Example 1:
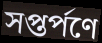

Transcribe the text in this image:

সপ্তর্পণে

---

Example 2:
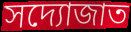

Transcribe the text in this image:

সদ্যোজাত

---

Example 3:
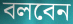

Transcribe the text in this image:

বলবেন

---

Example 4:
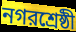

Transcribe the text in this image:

নগরশ্রেষ্ঠী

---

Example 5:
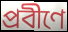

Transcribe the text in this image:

প্রবীণে